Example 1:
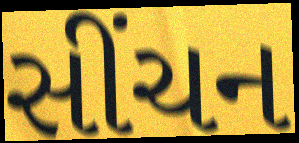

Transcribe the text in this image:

સીંચન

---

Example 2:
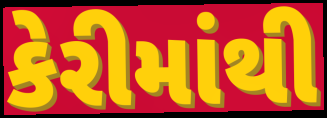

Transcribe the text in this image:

કેરીમાંથી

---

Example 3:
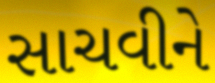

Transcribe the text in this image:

સાચવીને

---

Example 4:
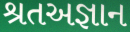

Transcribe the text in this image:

શ્રતઅજ્ઞાન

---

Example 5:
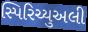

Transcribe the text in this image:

સ્પિરિચ્યુઅલી